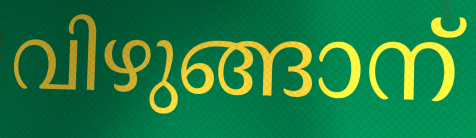
വിഴുങ്ങാന്